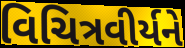
વિચિત્રવીર્યને